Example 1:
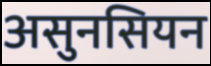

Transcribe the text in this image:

असुनसियन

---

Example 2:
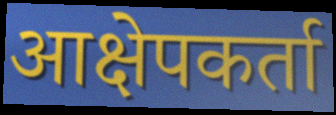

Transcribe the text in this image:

आक्षेपकर्ता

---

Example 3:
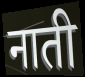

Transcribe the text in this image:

नाती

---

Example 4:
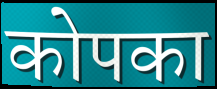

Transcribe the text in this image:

कोपका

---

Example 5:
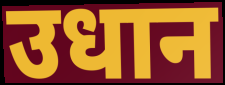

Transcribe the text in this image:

उधान